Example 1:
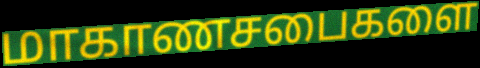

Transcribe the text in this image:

மாகாணசபைகளை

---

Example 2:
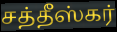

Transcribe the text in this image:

சத்தீஸ்கர்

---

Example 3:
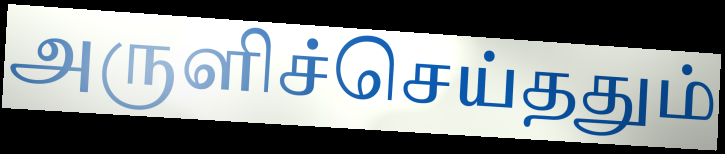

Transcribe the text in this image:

அருளிச்செய்ததும்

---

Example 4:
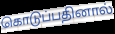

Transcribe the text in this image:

கொடுப்பதினால்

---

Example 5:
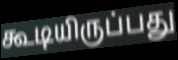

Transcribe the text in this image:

கூடியிருப்பது